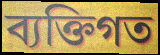
ব্যক্তিগত